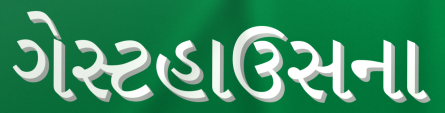
ગેસ્ટહાઉસના